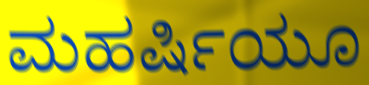
ಮಹರ್ಷಿಯೂ